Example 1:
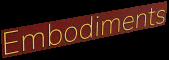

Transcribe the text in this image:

Embodiments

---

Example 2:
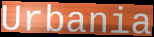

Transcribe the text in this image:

Urbania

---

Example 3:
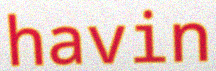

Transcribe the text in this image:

havin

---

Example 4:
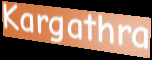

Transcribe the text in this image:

Kargathra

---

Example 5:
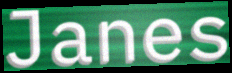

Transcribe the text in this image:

Janes